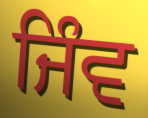
ਜਿੰਵ